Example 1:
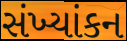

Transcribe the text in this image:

સંખ્યાંકન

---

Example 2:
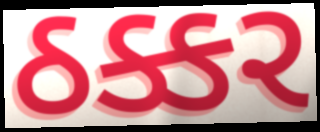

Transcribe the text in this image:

ઠક્કર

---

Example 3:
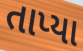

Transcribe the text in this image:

તાપ્યા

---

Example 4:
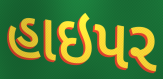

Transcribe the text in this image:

હાઇપર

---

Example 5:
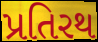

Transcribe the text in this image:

પ્રતિરથ